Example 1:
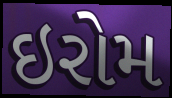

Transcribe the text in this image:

ઇરોમ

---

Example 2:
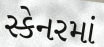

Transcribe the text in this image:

સ્કેનરમાં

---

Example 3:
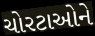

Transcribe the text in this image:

ચોરટાઓને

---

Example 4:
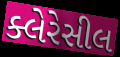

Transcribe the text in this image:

ક્લેરેસીલ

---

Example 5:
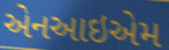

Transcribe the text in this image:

એનઆઇએમ